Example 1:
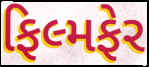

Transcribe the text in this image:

ફિલ્મફેર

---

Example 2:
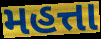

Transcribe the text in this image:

મહત્તા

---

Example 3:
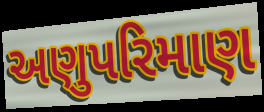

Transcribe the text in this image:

અણુપરિમાણ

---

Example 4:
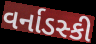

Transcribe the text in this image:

વર્નાડસ્કી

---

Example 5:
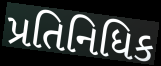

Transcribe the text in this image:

પ્રતિનિધિક